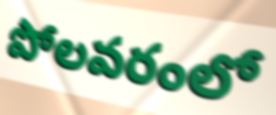
పోలవరంలో